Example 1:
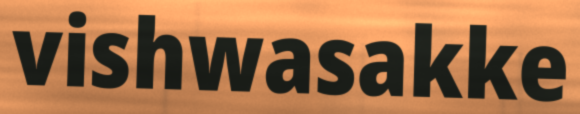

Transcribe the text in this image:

vishwasakke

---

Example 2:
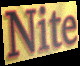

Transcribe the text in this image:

Nite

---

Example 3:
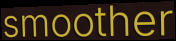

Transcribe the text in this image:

smoother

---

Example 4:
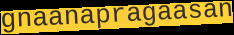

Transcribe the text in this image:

gnaanapragaasan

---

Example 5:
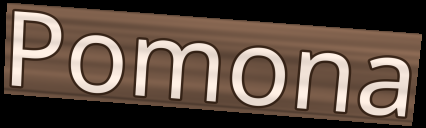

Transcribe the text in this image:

Pomona